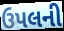
ઉપલની